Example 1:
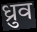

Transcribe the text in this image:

ध्रुव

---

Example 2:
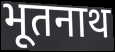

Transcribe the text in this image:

भूतनाथ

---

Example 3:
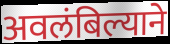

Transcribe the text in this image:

अवलंबिल्याने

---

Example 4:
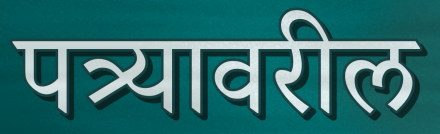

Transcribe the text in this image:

पत्र्यावरील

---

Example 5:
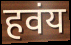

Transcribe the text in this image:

हवंय